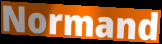
Normand